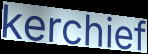
kerchief